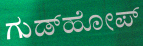
ಗುಡ್‌ಹೋಪ್